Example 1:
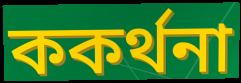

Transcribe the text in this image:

ককৰ্থনা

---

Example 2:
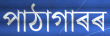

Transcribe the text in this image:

পাঠাগাৰৰ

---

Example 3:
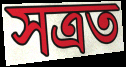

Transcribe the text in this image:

সত্ৰত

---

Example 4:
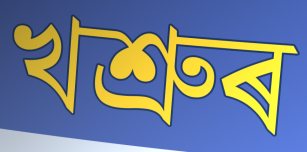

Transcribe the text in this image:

খশ্ৰুৰ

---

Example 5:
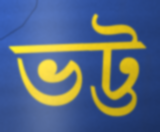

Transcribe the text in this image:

ভট্ট